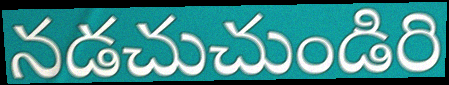
నడచుచుండిరి